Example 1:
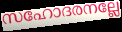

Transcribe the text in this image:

സഹോദരനല്ലേ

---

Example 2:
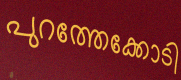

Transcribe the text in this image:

പുറത്തേക്കോടി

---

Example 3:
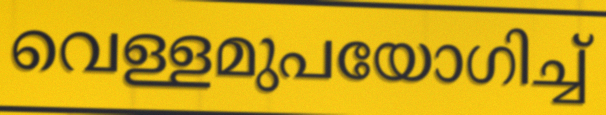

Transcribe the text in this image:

വെള്ളമുപയോഗിച്ച്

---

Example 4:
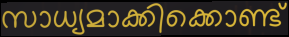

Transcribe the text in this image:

സാധ്യമാക്കിക്കൊണ്ട്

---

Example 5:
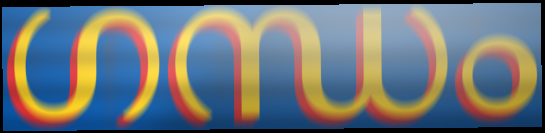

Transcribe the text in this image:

ഗന്ധം